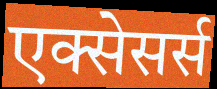
एक्सेसर्स